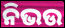
ନିଭଉ